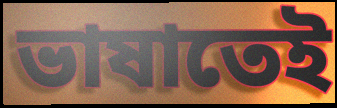
ভাষাতেই